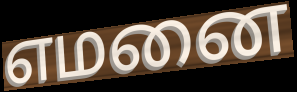
எமனை